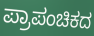
ಪ್ರಾಪಂಚಿಕದ